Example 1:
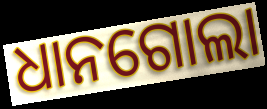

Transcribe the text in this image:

ଧାନଗୋଲା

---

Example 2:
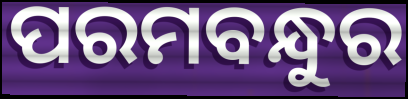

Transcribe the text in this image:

ପରମବନ୍ଧୁର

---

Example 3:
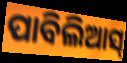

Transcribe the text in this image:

ପାବିଲିଆସ୍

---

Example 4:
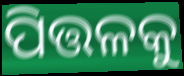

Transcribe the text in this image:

ପିତ୍ତଳକୁ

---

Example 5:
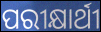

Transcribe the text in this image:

ପରୀକ୍ଷାର୍ଥୀ